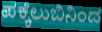
ಪಕ್ಕೆಲುಬಿನಿಂದ